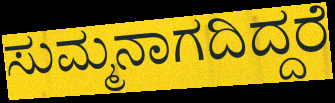
ಸುಮ್ಮನಾಗದಿದ್ದರೆ